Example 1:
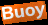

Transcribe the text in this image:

Buoy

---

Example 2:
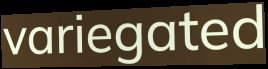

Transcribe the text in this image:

variegated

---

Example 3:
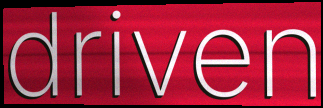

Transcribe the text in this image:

driven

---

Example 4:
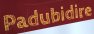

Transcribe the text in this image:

Padubidire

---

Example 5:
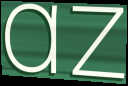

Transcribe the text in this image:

az